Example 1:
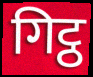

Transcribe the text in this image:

गिट्ठ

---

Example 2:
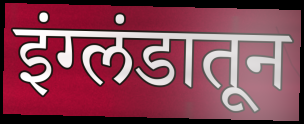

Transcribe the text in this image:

इंग्लंडातून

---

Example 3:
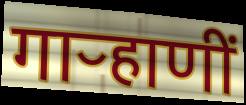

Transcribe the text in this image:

गाऱ्हाणीं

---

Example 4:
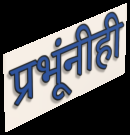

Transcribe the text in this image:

प्रभूंनीही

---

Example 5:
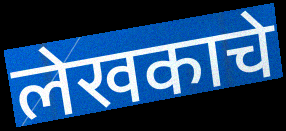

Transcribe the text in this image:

लेखकाचे